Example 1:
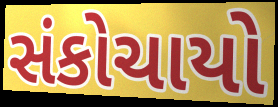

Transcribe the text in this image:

સંકોચાયો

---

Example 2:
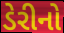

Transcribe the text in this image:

ડેરીનો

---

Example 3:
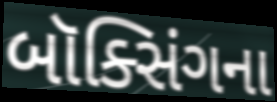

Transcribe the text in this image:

બૉક્સિંગના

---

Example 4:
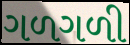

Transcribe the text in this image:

ગળગળી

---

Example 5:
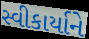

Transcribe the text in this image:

સ્વીકાર્યાને